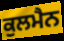
ਕੁਲਮੈਨ